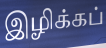
இழிக்கப்